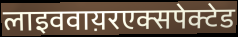
लाइववाय़रएक्सपेक्टेड